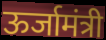
ऊर्जामंत्री